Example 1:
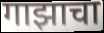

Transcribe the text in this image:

गाझाचा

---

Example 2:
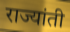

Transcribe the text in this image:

राज्यांती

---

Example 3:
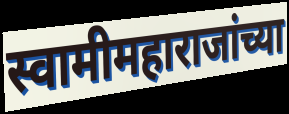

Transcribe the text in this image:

स्वामीमहाराजांच्या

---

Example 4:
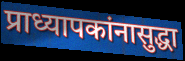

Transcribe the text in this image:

प्राध्यापकांनासुद्धा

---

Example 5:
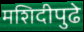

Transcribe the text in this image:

मशिदीपुढे